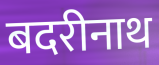
बदरीनाथ